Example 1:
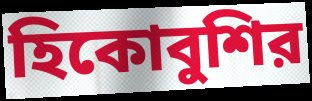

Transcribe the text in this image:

হিকোবুশির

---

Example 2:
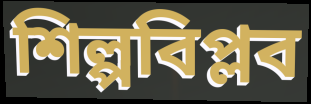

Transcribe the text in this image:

শিল্পবিপ্লব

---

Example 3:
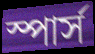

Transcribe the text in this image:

স্পার্স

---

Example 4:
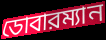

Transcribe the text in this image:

ডোবারম্যান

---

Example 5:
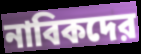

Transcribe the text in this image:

নাবিকদের